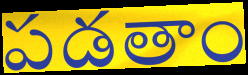
పడతాం